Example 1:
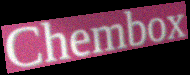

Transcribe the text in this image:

Chembox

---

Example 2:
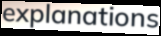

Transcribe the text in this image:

explanations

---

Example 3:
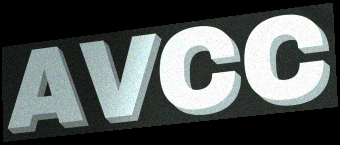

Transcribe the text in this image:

AVCC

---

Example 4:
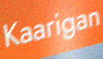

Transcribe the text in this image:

Kaarigan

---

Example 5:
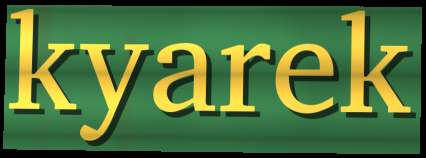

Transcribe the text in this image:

kyarek